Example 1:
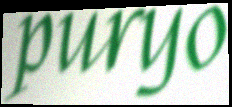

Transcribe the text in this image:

puryo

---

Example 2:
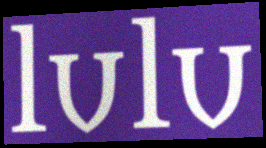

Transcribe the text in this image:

lulu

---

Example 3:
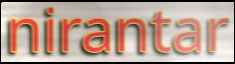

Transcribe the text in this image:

nirantar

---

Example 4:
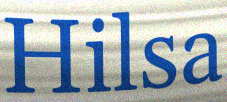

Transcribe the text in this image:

Hilsa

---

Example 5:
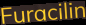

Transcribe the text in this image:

Furacilin